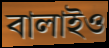
বালাইও